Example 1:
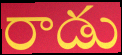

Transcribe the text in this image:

రాడు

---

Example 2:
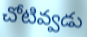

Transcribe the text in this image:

చోటివ్వడు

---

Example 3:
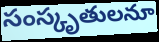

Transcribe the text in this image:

సంస్కృతులనూ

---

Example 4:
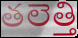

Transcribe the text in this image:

తలెత్తి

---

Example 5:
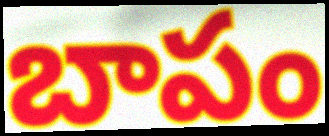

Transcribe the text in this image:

బాపం